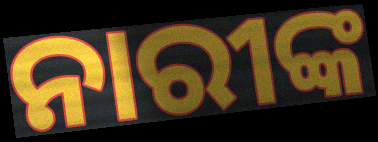
ନାରୀଙ୍କ